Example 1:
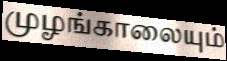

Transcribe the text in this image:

முழங்காலையும்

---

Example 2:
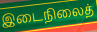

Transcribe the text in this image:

இடைநிலைத்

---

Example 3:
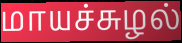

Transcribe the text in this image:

மாயச்சுழல்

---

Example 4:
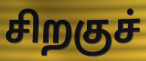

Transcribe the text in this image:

சிறகுச்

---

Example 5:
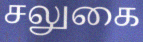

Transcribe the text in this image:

சலுகை